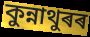
কুন্নাথুৰৰ